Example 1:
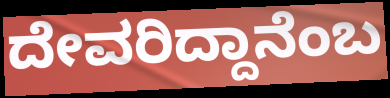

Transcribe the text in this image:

ದೇವರಿದ್ದಾನೆಂಬ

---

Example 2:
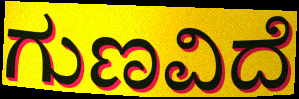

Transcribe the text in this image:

ಗುಣವಿದೆ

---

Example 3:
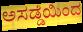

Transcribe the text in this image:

ಅಸಡ್ಡೆಯಿಂದ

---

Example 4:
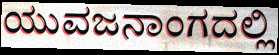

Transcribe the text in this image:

ಯುವಜನಾಂಗದಲ್ಲಿ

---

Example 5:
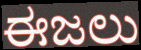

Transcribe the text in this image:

ಈಜಲು